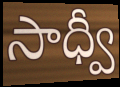
సాధ్వీ